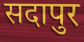
सदापुर